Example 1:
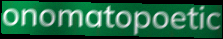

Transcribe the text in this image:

onomatopoetic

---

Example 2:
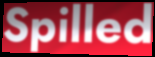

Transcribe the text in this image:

Spilled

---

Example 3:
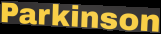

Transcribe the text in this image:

Parkinson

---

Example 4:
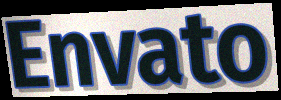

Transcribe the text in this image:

Envato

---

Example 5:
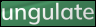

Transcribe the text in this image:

ungulate